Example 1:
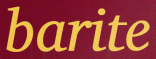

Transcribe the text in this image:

barite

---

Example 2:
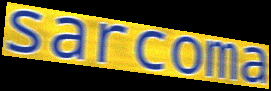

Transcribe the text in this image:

sarcoma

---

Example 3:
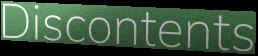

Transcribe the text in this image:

Discontents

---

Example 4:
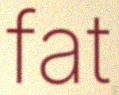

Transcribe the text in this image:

fat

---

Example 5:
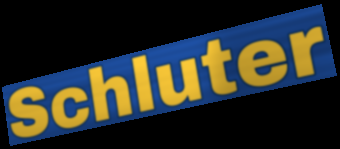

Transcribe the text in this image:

Schluter